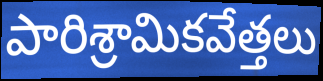
పారిశ్రామికవేత్తలు